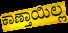
ಕಾಣ್ತಾಯಿಲ್ಲ